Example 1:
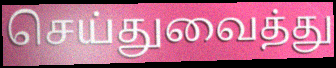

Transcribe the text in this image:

செய்துவைத்து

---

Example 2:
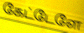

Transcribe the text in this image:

கேட்டேளே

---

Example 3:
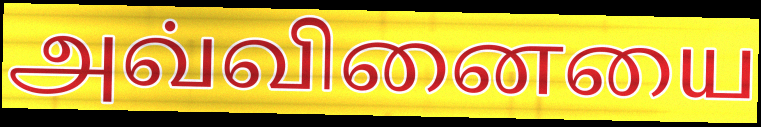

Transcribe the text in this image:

அவ்வினையை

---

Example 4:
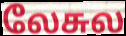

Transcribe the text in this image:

லேசுல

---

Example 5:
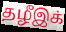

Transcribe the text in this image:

தழீஇக்